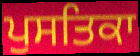
ਪੁਸਤਿਕਾ